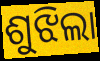
ଶୁଝିଲା